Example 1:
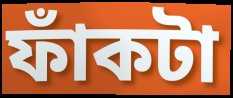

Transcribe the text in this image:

ফাঁকটা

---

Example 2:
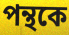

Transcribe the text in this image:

পন্থকে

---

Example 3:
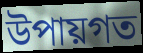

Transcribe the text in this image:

উপায়গত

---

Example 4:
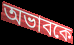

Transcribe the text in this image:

অভাবকে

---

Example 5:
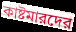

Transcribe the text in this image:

কাষ্টমারদের